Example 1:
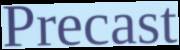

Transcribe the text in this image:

Precast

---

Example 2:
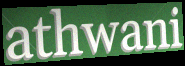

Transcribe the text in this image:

athwani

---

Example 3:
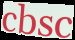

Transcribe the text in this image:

cbsc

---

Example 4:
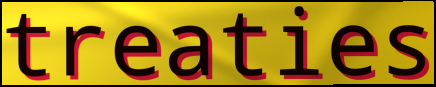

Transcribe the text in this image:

treaties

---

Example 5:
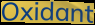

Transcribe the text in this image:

Oxidant